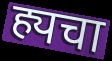
ह्यचा